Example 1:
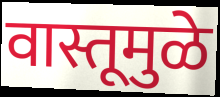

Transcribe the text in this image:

वास्तूमुळे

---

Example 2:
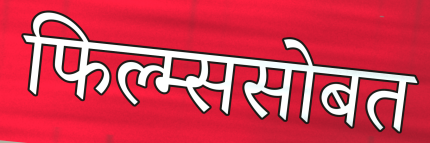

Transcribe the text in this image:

फिल्म्ससोबत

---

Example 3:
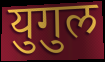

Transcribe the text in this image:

युगुल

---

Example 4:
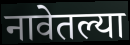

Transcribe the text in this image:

नावेतल्या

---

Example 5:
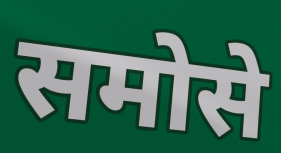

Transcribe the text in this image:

समोसे